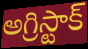
అగ్రిస్టాక్